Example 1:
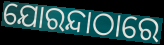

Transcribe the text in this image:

ଯୋରନ୍ଦାଠାରେ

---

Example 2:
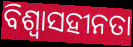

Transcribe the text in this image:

ବିଶ୍ୱାସହୀନତା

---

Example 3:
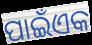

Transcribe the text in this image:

ପାଇଁଏକ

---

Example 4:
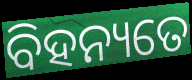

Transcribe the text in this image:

ବିହନ୍ୟତେ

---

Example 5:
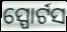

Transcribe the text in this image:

ସ୍ପୋର୍ଟସ